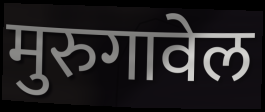
मुरुगावेल